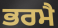
ਭਰਮੈ